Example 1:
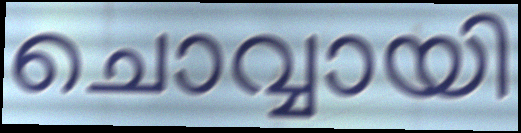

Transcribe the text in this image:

ചൊവ്വായി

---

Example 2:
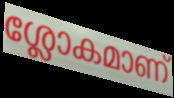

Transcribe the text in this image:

ശ്ലോകമാണ്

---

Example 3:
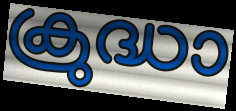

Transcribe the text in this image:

ക്രുദ്ധാ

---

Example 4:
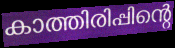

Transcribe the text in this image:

കാത്തിരിപ്പിന്റെ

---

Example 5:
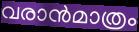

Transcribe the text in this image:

വരാൻമാത്രം